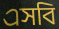
এসবি